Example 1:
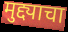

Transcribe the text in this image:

मुद्द्याचा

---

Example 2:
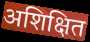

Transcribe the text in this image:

अशिक्षित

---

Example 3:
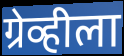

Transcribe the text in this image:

ग्रेव्हीला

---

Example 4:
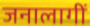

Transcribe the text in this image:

जनालागीं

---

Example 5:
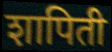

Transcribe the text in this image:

शापिती